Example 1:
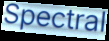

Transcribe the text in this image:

Spectral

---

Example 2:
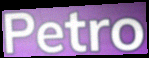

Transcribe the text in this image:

Petro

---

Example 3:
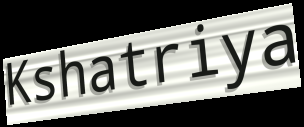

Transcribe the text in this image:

Kshatriya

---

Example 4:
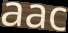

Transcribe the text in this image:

aac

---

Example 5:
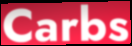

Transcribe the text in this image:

Carbs